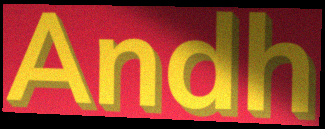
Andh